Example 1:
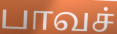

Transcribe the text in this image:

பாவச்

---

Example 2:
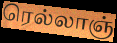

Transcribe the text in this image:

ரெல்லாஞ்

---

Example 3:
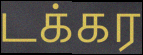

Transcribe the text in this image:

டக்கர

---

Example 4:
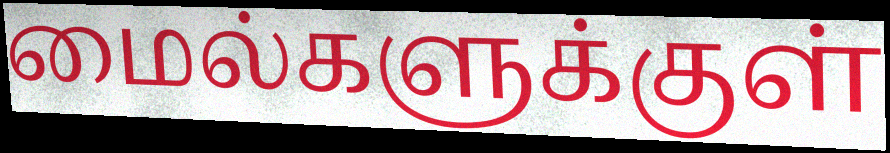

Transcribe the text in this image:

மைல்களுக்குள்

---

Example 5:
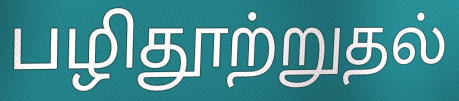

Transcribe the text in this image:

பழிதூற்றுதல்